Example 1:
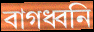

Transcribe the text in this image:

বাগধ্বনি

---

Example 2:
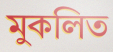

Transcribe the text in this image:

মুকলিত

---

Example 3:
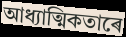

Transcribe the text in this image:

আধ্যাত্মিকতাৰে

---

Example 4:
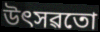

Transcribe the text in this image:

উৎসৱতো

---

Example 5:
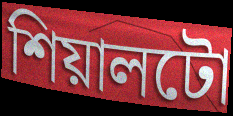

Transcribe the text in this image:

শিয়ালটো